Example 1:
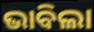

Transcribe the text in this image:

ଭାବିଲା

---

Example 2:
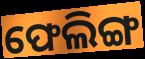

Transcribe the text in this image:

ଫେଲିଙ୍ଗ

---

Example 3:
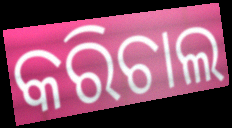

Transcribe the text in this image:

କରିଚାଲ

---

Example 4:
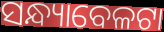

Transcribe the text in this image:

ସନ୍ଧ୍ୟାବେଳଟା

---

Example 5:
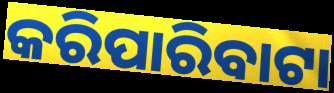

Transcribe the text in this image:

କରିପାରିବାଟା